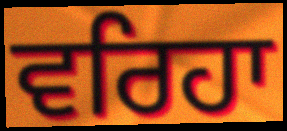
ਵਰਿਹਾ